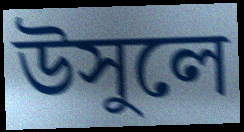
উসুলে